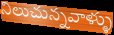
నిలుచున్నవాళ్ళు